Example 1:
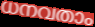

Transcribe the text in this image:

ധനവതാം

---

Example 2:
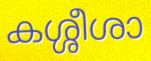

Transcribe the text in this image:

കശ്ശീശാ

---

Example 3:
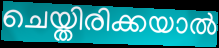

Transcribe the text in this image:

ചെയ്തിരിക്കയാൽ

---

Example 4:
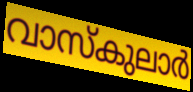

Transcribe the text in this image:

വാസ്കുലാർ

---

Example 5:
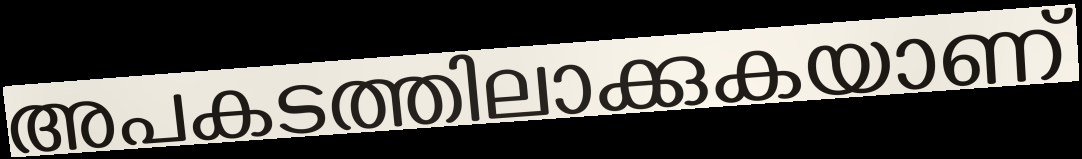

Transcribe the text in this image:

അപകടത്തിലാക്കുകയാണ്